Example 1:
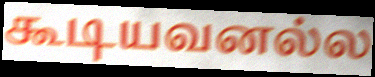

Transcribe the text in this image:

கூடியவனல்ல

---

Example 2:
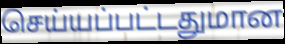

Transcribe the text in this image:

செய்யப்பட்டதுமான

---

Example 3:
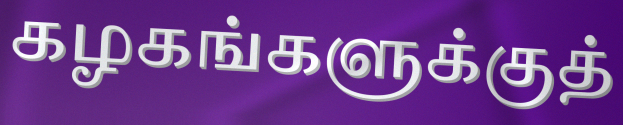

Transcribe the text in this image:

கழகங்களுக்குத்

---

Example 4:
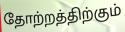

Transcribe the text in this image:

தோற்றத்திற்கும்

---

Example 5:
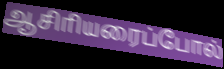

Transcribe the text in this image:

ஆசிரியரைப்போல்